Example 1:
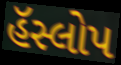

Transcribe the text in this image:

હૅસ્લોપ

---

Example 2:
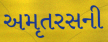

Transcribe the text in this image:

અમૃતરસની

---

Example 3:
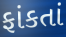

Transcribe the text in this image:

ફાંકતાં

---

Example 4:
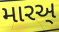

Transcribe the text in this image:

મારઅ્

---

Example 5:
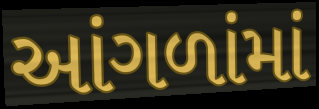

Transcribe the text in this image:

આંગળાંમાં